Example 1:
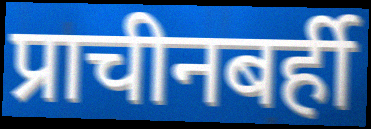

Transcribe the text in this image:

प्राचीनबर्ही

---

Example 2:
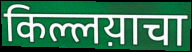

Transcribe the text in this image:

किल्लय़ाचा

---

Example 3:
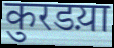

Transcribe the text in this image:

कुरडय़ा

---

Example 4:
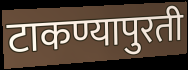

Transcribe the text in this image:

टाकण्यापुरती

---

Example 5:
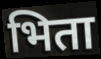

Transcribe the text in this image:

भिता